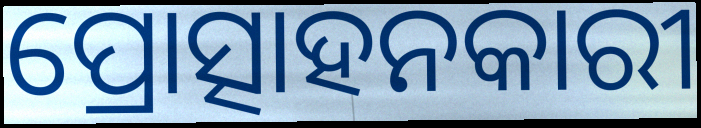
ପ୍ରୋତ୍ସାହନକାରୀ